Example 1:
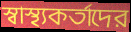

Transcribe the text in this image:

স্বাস্থ্যকর্তাদের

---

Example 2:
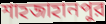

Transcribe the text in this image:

শাহজাহানপুর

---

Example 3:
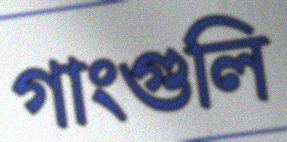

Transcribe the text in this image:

গাংগুলি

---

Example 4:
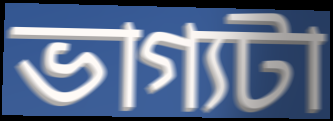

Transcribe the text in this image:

ভাগ্যটা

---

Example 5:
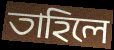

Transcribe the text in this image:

তাহিলে